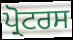
ਪ੍ਰੋਟਰਸ